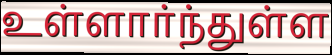
உள்ளார்ந்துள்ள